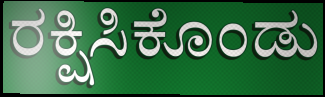
ರಕ್ಷಿಸಿಕೊಂಡು